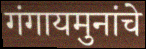
गंगायमुनांचे